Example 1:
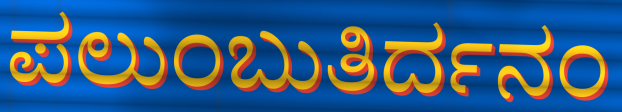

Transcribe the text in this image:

ಪಲುಂಬುತಿರ್ದನಂ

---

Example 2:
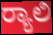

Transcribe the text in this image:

ರ‍್ಯಾಲಿ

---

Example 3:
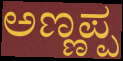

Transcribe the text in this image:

ಅಣ್ಣಪ್ಪ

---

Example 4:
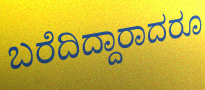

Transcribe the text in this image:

ಬರೆದಿದ್ದಾರಾದರೂ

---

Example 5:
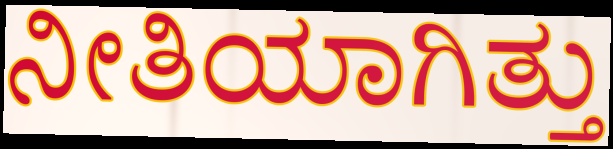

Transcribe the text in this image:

ನೀತಿಯಾಗಿತ್ತು